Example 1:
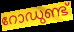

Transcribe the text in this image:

റോഡുണ്ട്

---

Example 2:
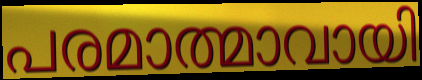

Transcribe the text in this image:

പരമാത്മാവായി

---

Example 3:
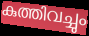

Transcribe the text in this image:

കുത്തിവച്ചും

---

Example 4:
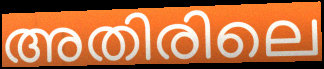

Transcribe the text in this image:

അതിരിലെ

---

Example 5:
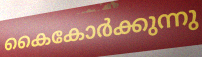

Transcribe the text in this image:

കൈകോർക്കുന്നു